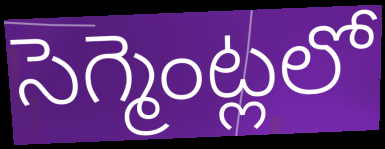
సెగ్మెంట్లలో